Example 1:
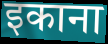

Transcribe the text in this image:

इकाना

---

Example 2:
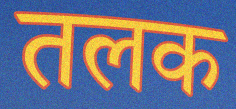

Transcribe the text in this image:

तलक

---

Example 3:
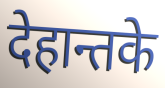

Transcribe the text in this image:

देहान्तके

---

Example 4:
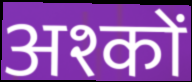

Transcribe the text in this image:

अश्कों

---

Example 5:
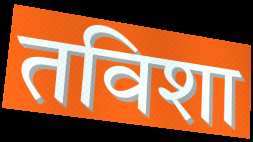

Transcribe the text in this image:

तविशा